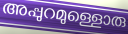
അപ്പുറമുള്ളൊരു